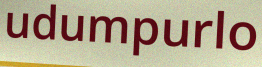
udumpurlo